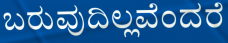
ಬರುವುದಿಲ್ಲವೆಂದರೆ